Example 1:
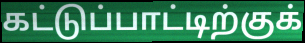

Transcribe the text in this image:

கட்டுப்பாட்டிற்குக்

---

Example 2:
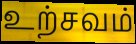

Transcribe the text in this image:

உற்சவம்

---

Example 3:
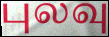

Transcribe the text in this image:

புலவு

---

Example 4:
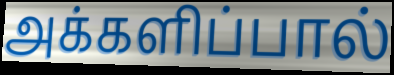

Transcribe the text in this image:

அக்களிப்பால்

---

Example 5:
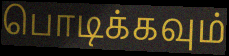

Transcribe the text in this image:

பொடிக்கவும்